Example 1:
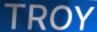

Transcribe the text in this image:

TROY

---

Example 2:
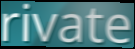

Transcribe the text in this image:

rivate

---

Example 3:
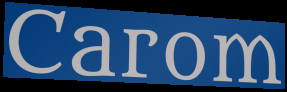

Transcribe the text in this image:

Carom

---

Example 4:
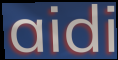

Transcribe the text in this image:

aidi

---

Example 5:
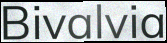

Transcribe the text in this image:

Bivalvia